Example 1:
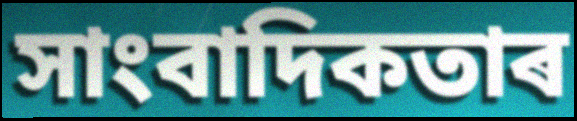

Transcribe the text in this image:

সাংবাদিকতাৰ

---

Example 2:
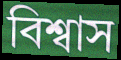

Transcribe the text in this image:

বিশ্বাস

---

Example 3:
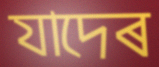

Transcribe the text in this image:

যাদেৰ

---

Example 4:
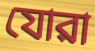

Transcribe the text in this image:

যোৱা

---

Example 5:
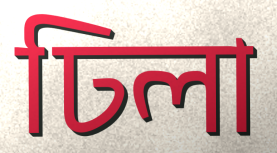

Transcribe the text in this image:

ঢিলা